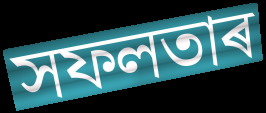
সফলতাৰ